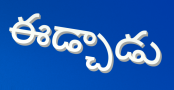
ఈడ్చాడు